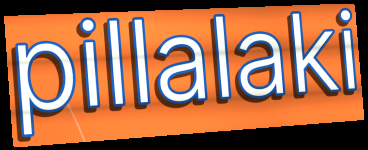
pillalaki